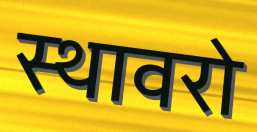
स्थावरो